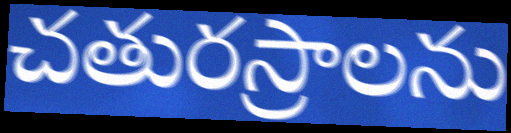
చతురస్రాలను